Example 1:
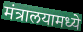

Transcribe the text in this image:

मंत्रालयामध्ये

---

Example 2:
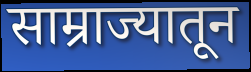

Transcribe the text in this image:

साम्राज्यातून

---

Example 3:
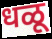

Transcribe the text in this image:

धळू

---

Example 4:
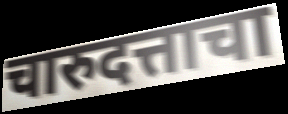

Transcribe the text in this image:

चारुदत्ताचा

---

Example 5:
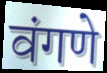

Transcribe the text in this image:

वंगणे